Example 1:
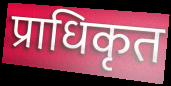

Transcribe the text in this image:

प्राधिकृत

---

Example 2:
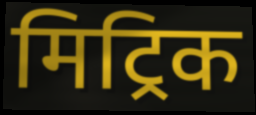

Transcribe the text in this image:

मिट्रिक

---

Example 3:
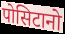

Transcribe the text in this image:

पोसिटानो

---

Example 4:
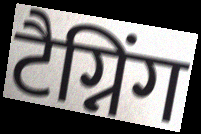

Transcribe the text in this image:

टैग्निंग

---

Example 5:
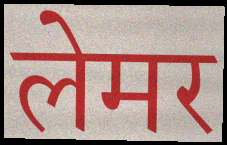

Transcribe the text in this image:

लेमर